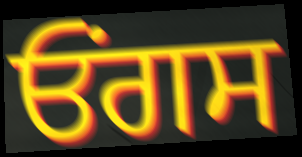
ਓਂਗਸ